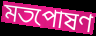
মতপোষণ